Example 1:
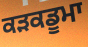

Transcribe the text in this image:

ਕੜਕਡੂਮਾ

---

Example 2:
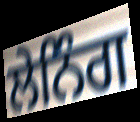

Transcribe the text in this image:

ਲੇਨਿੰਗ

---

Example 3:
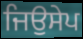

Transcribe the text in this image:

ਜਿਉਸੇਪ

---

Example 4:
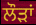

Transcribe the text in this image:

ਲੌੜਾਂ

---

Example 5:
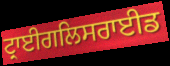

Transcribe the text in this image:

ਟ੍ਰਾਈਗਲਿਸਰਾਈਡ